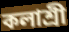
কলাশ্রী